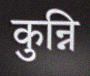
कुन्नि